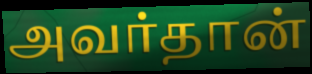
அவர்தான்